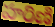
హరిణి